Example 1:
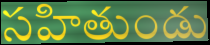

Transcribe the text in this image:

సహితుండు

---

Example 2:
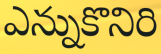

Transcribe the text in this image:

ఎన్నుకొనిరి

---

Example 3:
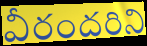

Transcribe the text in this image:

వీరందరిని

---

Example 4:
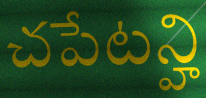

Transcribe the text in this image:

చపేటన్హి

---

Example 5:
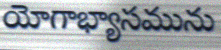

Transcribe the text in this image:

యోగాభ్యాసమును